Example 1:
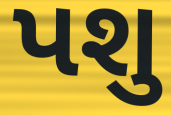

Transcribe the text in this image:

પશુ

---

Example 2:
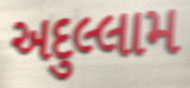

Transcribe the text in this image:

અદુલ્લામ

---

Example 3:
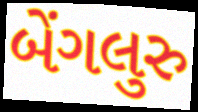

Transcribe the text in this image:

બેંગલુરુ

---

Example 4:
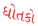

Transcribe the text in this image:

ધોતકો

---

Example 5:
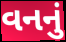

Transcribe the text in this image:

વનનું